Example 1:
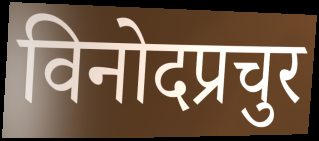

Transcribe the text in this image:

विनोदप्रचुर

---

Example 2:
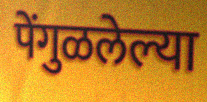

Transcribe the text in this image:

पेंगुळलेल्या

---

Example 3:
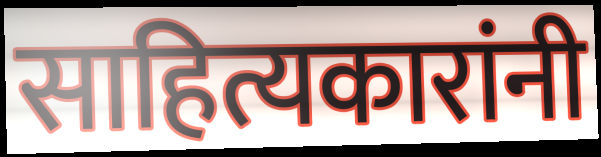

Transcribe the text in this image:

साहित्यकारांनी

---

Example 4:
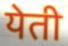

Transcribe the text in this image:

येती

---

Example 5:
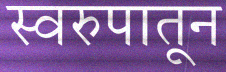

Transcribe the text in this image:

स्वरुपातून